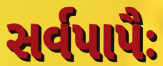
સર્વપાપૈઃ